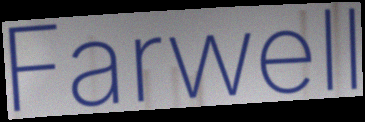
Farwell